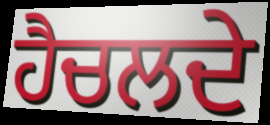
ਹੈਚਲਦੇ